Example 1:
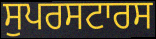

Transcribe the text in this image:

ਸੁਪਰਸਟਾਰਸ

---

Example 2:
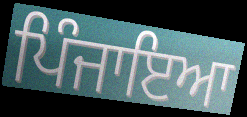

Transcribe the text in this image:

ਪਿੰਜਾਇਆ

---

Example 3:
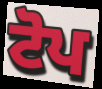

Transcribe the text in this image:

ਟੋਪ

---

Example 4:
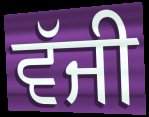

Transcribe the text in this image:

ਵੱਜੀ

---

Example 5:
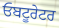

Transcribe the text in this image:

ਓਬਟੂਰੇਟਰ